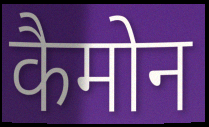
कैमोन